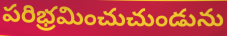
పరిభ్రమించుచుండును